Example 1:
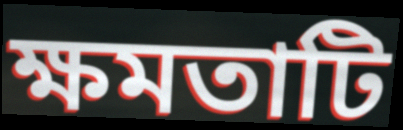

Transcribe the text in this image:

ক্ষমতাটি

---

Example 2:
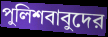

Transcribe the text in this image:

পুলিশবাবুদের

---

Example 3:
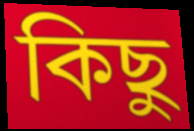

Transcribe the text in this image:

কিছু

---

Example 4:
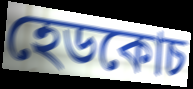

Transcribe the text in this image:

হেডকোচ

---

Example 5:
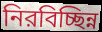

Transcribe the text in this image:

নিরবিচ্ছিন্ন